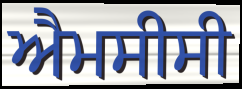
ਐਮਸੀਸੀ